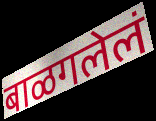
बाळगलेलं